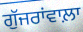
ਗੁੱਜਰਾਂਵਾਲ਼ਾ